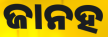
ଜାନହ